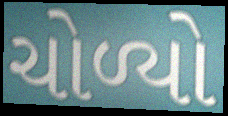
ચોળ્યો